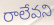
రాలేవని